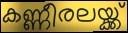
കണ്ണീരലയ്ക്ക്